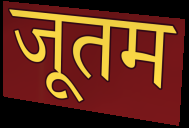
जूतम